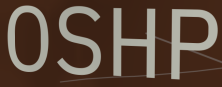
OSHP